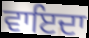
ਵਾਇਦਾ